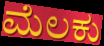
ಮೆಲಕು